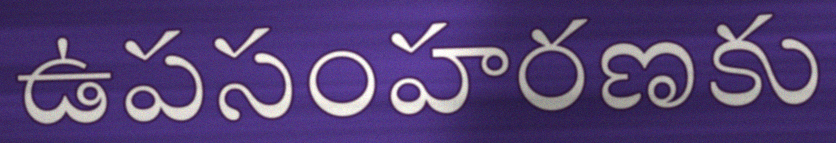
ఉపసంహరణకు